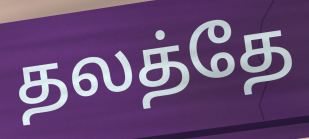
தலத்தே